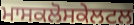
ਮਾਸਕਲੋਸਕੇਲਟਲ